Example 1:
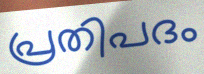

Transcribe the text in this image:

പ്രതിപദം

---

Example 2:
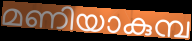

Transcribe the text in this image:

മണിയാകുമ്പ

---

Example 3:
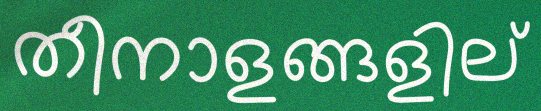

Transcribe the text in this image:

തീനാളങ്ങളില്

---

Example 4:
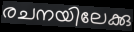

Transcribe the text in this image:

രചനയിലേക്കു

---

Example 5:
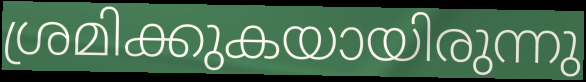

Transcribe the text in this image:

ശ്രമിക്കുകയായിരുന്നു